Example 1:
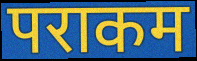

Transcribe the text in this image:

पराकम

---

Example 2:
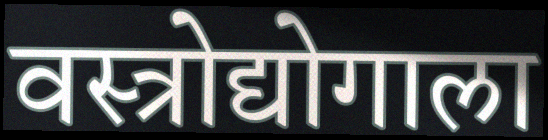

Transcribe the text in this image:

वस्त्रोद्योगाला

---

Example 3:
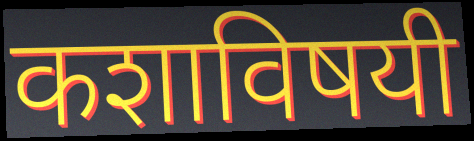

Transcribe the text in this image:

कशाविषयी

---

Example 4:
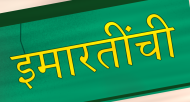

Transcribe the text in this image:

इमारतींची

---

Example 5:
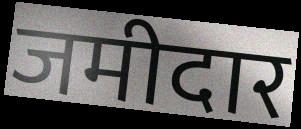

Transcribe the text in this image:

जमीदार